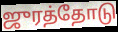
ஜுரத்தோடு